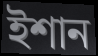
ইশান